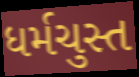
ધર્મચુસ્ત